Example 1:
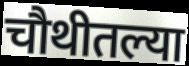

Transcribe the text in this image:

चौथीतल्या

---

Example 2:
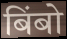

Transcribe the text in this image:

बिंबो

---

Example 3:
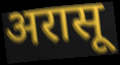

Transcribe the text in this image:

अरासू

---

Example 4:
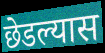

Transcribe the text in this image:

छेडल्यास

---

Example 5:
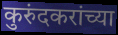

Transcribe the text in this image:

कुरुंदकरांच्या